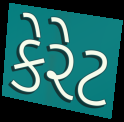
કેરેટ